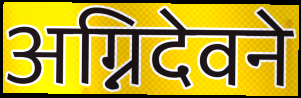
अग्निदेवने